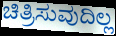
ಚಿತ್ರಿಸುವುದಿಲ್ಲ